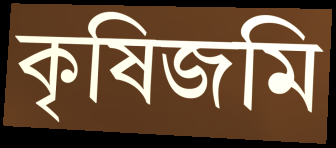
কৃষিজমি